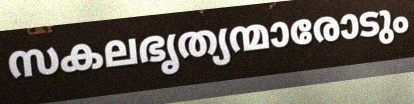
സകലഭൃത്യന്മാരോടും